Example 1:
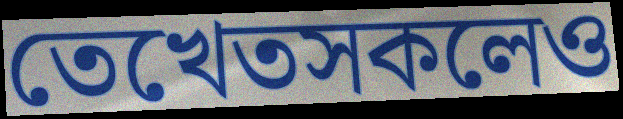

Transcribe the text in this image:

তেখেতসকলেও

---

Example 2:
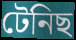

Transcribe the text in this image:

টেনিছ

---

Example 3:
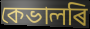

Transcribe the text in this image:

কেভালৰি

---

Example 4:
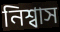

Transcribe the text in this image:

নিশ্বাস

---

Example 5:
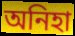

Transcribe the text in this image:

অনিহা